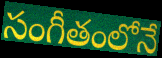
సంగీతంలోనే